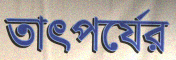
তাৎপর্যের